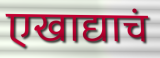
एखाद्याचं